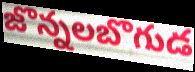
జొన్నలబొగుడ